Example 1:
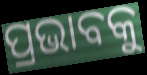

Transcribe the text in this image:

ପ୍ରଭାବକୁ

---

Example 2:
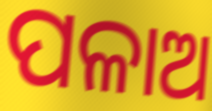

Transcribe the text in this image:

ପଳାଅ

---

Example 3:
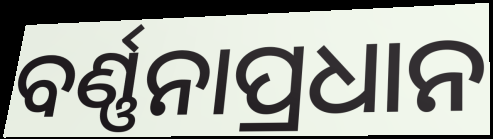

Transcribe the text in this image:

ବର୍ଣ୍ଣନାପ୍ରଧାନ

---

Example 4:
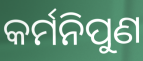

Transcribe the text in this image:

କର୍ମନିପୁଣ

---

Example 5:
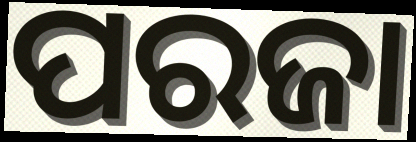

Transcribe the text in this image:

ପରଜା